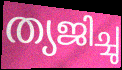
ത്യജിച്ചു